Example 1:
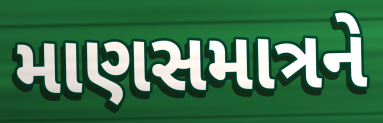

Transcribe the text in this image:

માણસમાત્રને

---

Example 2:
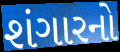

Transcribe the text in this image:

શંગારનો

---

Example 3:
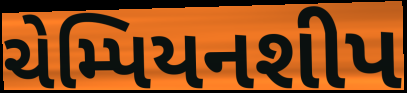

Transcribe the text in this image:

ચેમ્પિયનશીપ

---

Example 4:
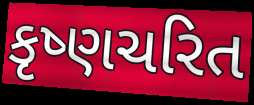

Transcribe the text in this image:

કૃષ્ણચરિત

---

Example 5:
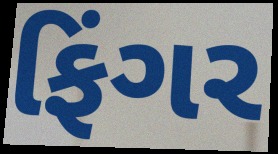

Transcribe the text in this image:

ફિંગર